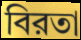
বিরতা